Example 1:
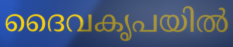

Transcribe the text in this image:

ദൈവകൃപയിൽ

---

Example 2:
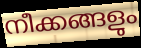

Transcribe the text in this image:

നീക്കങ്ങളും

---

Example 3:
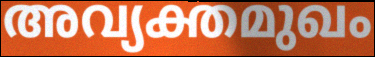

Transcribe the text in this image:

അവ്യക്തമുഖം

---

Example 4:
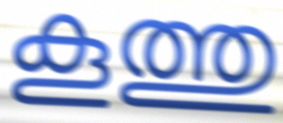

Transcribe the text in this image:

കൂത്തു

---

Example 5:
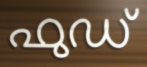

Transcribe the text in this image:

ഫുഡ്